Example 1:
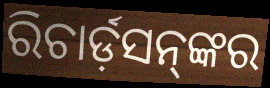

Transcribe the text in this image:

ରିଚାର୍ଡ଼ସନ୍‌ଙ୍କର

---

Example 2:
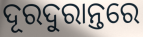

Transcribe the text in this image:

ଦୂରଦୁରାନ୍ତରେ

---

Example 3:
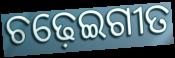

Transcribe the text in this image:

ଚଢ଼େଇଗୀତ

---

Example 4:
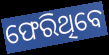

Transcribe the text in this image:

ଫେରିଥିବେ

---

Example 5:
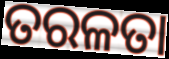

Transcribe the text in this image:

ତରଳତା